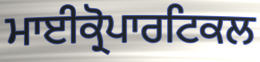
ਮਾਈਕ੍ਰੋਪਾਰਟਿਕਲ